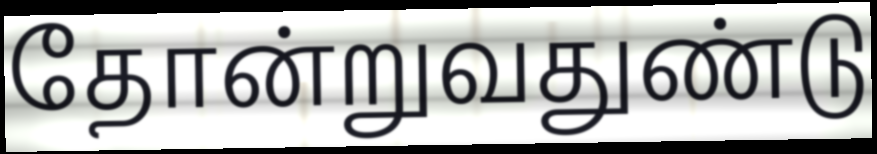
தோன்றுவதுண்டு